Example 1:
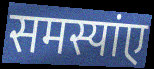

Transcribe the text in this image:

समस्यांए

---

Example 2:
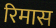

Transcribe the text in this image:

रिमास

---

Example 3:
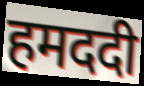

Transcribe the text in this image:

हमददी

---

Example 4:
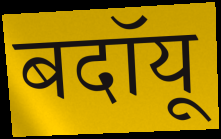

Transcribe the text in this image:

बदॉयू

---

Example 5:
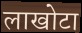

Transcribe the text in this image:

लाखोटा